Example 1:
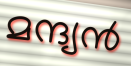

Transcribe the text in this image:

മന്ദ്യൻ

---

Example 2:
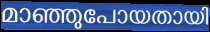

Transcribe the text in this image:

മാഞ്ഞുപോയതായി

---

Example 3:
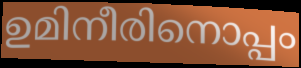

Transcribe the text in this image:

ഉമിനീരിനൊപ്പം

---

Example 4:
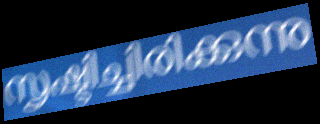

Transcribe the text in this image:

സൃഷ്ടിച്ചിരിക്കുന്നു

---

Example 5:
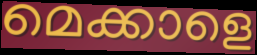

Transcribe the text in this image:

മെക്കാളെ